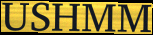
USHMM